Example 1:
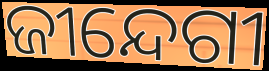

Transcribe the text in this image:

ଜୀନ୍ଦେଗୀ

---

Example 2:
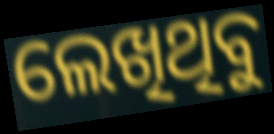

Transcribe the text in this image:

ଲେଖିଥିବୁ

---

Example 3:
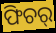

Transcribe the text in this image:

ଫିଚର୍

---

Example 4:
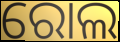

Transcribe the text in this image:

ରୋଲ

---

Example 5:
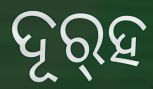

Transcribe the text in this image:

ଦୂର୍‌ହ